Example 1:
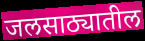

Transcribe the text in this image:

जलसाठ्यातील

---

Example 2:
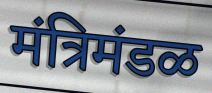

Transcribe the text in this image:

मंत्रिमंडळ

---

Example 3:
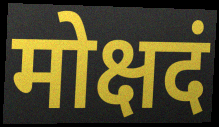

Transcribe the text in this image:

मोक्षदं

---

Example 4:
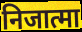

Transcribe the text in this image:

निजात्मा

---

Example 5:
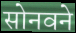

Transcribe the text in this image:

सोनवने